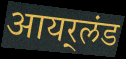
आयर्लंड